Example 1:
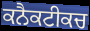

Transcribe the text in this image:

ਕਨੈਕਟੀਕਚ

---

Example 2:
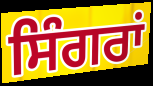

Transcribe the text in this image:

ਸਿੰਗਰਾਂ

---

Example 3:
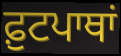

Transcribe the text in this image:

ਫ਼ੁਟਪਾਥਾਂ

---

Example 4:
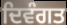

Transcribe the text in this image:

ਦਿਵੰਗਤ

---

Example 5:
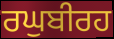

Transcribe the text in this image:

ਰਘੁਬੀਰਹ